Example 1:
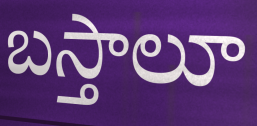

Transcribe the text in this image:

బస్తాలూ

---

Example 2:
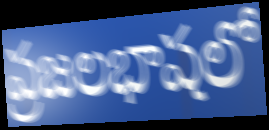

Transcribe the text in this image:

ప్రజలభాషలో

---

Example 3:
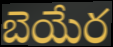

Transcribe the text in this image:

బెయేర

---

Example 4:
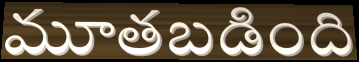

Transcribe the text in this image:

మూతబడింది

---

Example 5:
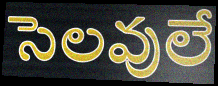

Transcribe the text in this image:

సెలవులే